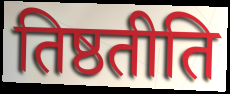
तिष्ठतीति